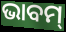
ଭାବମ୍